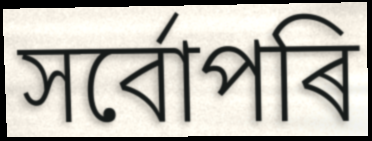
সৰ্বোপৰি